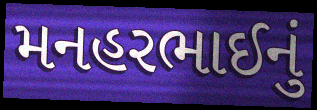
મનહરભાઈનું